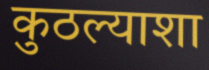
कुठल्याशा